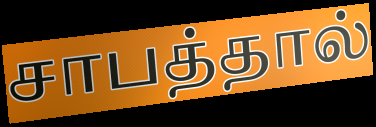
சாபத்தால்